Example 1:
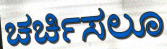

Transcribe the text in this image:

ಚರ್ಚಿಸಲೂ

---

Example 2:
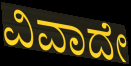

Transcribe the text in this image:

ವಿವಾದೇ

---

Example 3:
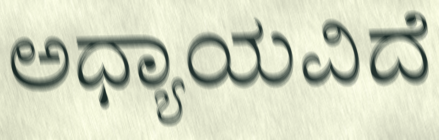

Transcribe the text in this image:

ಅಧ್ಯಾಯವಿದೆ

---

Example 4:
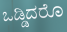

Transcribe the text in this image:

ಒಡ್ಡಿದರೊ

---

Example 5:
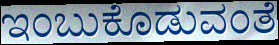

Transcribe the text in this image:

ಇಂಬುಕೊಡುವಂತೆ